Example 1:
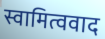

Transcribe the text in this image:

स्वामित्ववाद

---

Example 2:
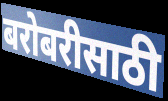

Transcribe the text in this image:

बरोबरीसाठी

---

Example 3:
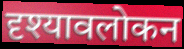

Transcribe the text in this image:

दृश्‍यावलोकन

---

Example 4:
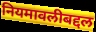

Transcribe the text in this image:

नियमावलीबद्दल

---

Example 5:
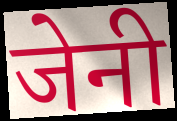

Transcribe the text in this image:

जेनी